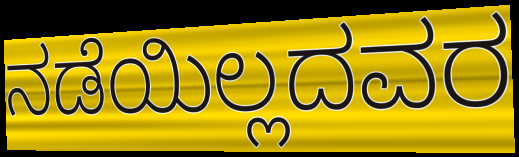
ನಡೆಯಿಲ್ಲದವರ